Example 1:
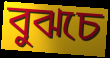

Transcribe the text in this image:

বুঝচে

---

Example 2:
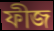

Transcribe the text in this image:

ফীজ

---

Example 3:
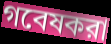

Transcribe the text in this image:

গবেষকরা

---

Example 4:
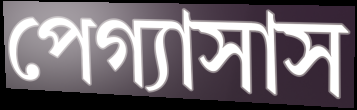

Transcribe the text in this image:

পেগ্যাসাস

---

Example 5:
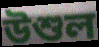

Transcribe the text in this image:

উশুল